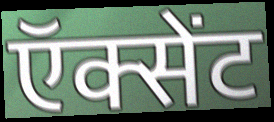
ऍक्सेंट